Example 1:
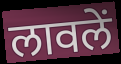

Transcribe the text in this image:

लावलें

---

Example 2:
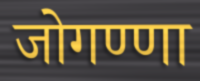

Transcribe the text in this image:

जोगण्णा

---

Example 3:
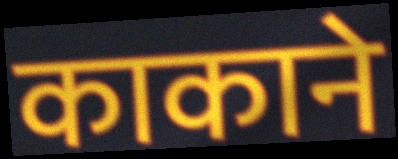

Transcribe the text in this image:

काकाने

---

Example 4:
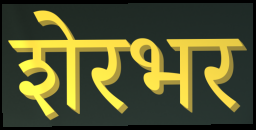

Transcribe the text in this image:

शेरभर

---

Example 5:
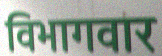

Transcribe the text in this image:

विभागवार